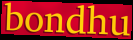
bondhu